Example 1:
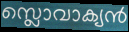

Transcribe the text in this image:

സ്ലൊവാക്യൻ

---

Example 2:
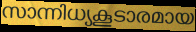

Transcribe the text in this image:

സാന്നിധ്യകൂടാരമായ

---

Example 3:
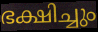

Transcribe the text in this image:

ഭക്ഷിച്ചും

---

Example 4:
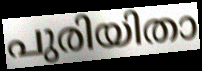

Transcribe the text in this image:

പുരിയിതാ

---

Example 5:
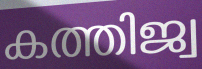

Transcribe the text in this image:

കത്തിജ്വ